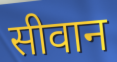
सीवान